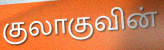
குலாகுவின்